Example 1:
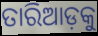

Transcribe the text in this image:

ତାରିଆଡ଼କୁ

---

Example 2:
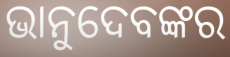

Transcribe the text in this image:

ଭାନୁଦେବଙ୍କର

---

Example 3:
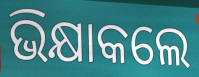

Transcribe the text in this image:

ଭିକ୍ଷାକଲେ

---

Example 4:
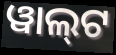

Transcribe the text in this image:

ୱାଲ୍‌ଟ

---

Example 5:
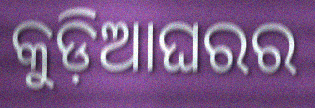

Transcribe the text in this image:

କୁଡ଼ିଆଘରର